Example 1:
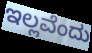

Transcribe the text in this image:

ಇಲ್ಲವೆಂದು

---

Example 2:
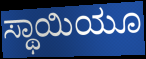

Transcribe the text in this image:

ಸ್ಥಾಯಿಯೂ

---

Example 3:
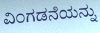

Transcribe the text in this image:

ವಿಂಗಡನೆಯನ್ನು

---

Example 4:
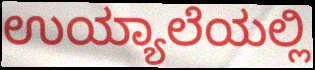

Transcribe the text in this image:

ಉಯ್ಯಾಲೆಯಲ್ಲಿ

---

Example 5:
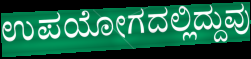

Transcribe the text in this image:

ಉಪಯೋಗದಲ್ಲಿದ್ದುವು